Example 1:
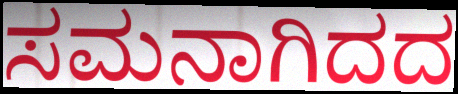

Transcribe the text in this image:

ಸಮನಾಗಿದದ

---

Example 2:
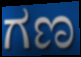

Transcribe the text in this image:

ಗಣ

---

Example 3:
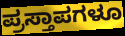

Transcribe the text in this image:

ಪ್ರಸ್ತಾಪಗಳೂ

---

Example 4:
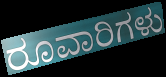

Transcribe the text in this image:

ರೂವಾರಿಗಳು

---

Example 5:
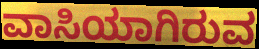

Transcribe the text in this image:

ವಾಸಿಯಾಗಿರುವ